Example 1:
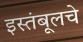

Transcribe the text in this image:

इस्तंबूलचे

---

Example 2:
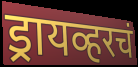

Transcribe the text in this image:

ड्रायव्हरचं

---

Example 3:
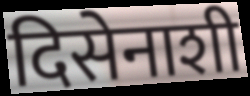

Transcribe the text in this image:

दिसेनाशी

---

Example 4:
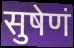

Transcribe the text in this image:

सुषेणं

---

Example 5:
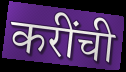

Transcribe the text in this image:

करींची